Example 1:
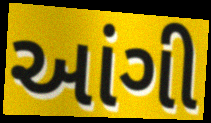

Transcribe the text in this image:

આંગી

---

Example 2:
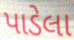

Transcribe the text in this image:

પાડેલા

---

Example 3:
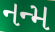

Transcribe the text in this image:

નન્મ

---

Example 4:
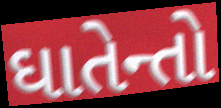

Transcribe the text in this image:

ઘાતેન્તો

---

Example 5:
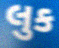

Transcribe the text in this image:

લુક